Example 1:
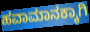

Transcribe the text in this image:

ಹವಾಮಾನಕ್ಕಾಗಿ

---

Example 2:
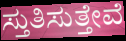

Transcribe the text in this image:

ಸ್ತುತಿಸುತ್ತೇವೆ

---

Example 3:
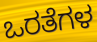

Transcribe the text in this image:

ಒರತೆಗಳ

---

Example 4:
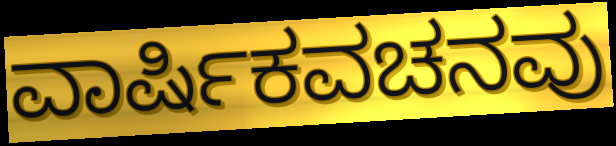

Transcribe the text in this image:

ವಾರ್ಷಿಕವಚನವು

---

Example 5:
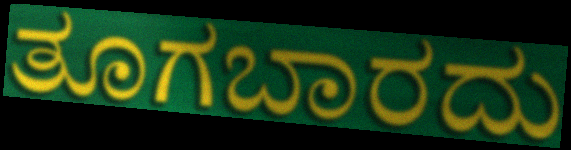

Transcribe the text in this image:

ತೂಗಬಾರದು